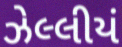
ઝેલ્લીયં